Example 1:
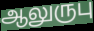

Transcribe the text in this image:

ஆலுருபு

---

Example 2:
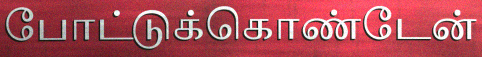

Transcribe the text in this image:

போட்டுக்கொண்டேன்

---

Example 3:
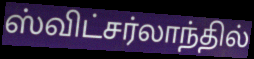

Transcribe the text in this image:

ஸ்விட்சர்லாந்தில்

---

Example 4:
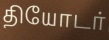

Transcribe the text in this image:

தியோடர்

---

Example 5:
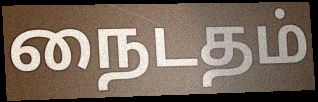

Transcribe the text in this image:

நைடதம்